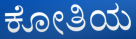
ಕೋತಿಯ